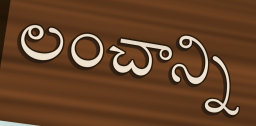
లంచాన్ని